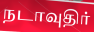
நடாவுதிர்